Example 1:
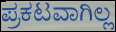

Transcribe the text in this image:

ಪ್ರಕಟವಾಗಿಲ್ಲ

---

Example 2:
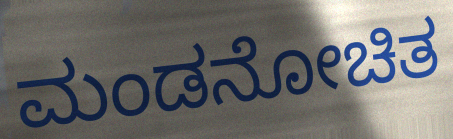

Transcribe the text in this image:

ಮಂಡನೋಚಿತ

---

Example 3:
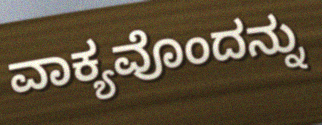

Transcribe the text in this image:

ವಾಕ್ಯವೊಂದನ್ನು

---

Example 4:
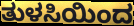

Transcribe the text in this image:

ತುಳಸಿಯಿಂದ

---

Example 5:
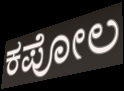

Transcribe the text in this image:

ಕಪೋಲ